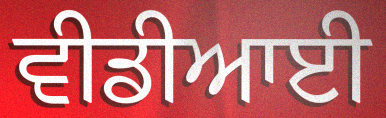
ਵੀਡੀਆਈ